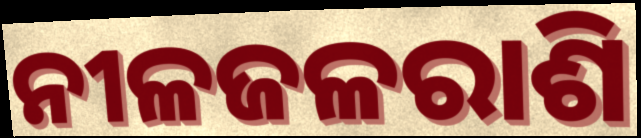
ନୀଳଜଳରାଶି